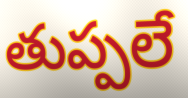
తుప్పలే